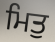
ਮਿਤੁ